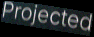
Projected